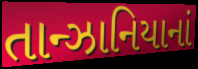
તાન્ઝાનિયાનાં